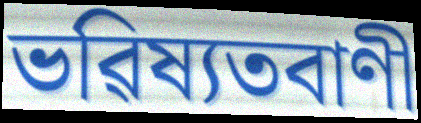
ভৱিষ্যতবাণী